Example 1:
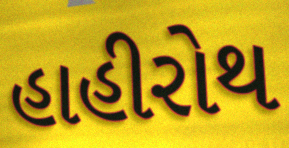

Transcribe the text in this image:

હાહીરોથ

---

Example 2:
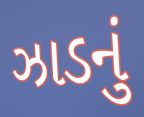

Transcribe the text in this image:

ઝાડનું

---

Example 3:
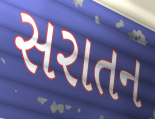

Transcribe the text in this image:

સરાતન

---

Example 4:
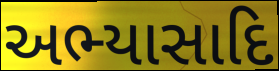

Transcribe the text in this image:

અભ્યાસાદિ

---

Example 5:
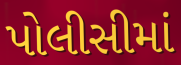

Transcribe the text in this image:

પોલીસીમાં